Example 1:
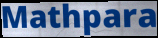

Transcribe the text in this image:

Mathpara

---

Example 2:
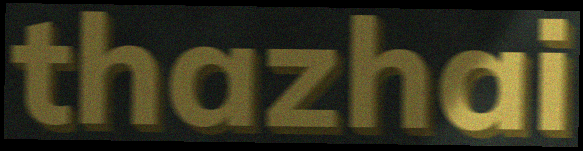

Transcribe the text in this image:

thazhai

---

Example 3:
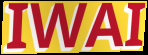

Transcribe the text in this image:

IWAI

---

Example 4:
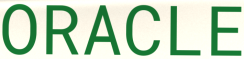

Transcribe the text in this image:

ORACLE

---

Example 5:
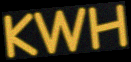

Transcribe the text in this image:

KWH